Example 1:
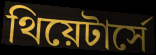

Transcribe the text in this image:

থিয়েটার্সে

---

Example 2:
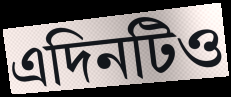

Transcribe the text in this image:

এদিনটিও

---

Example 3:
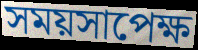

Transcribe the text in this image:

সময়সাপেক্ষ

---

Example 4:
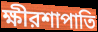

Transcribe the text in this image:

ক্ষীরশাপাতি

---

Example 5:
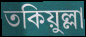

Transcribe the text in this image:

তকিয়ুল্লা